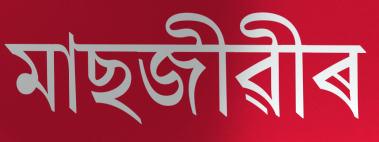
মাছজীৱীৰ